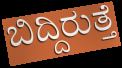
ಬಿದ್ದಿರುತ್ತೆ